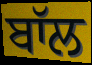
ਬਾੱਲ